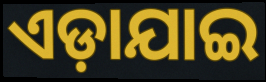
ଏଡ଼ାଯାଇ